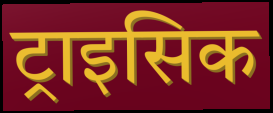
ट्राइसिक